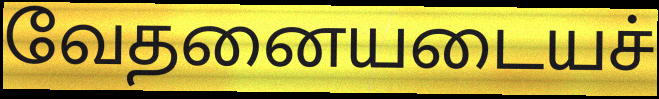
வேதனையடையச்